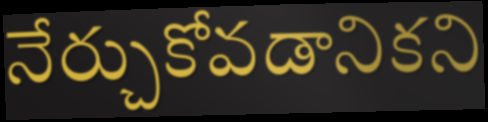
నేర్చుకోవడానికని